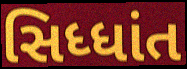
સિધ્ધાંત